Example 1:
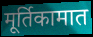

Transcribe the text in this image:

मूर्तिकामात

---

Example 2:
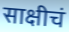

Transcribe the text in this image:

साक्षीचं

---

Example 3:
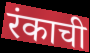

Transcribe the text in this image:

रंकाची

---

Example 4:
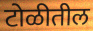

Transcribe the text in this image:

टोळीतील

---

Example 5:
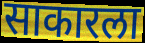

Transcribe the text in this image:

साकारला